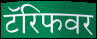
टॅरिफवर